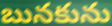
బునకును